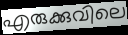
എരുക്കുവിലെ